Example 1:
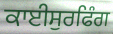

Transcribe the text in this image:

ਕਾਈਸੁਰਫਿੰਗ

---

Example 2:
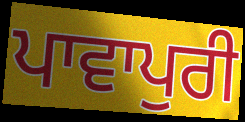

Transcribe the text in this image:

ਪਾਵਾਪੁਰੀ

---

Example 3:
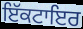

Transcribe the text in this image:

ਇੱਕਟਾਇਰ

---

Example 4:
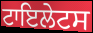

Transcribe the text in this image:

ਟਾਇਲੇਟਸ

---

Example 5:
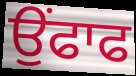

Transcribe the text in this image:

ਉੰਫਾਫ